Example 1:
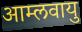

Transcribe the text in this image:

आम्लवायु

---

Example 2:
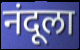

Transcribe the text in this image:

नंदूला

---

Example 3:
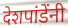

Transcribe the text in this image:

देशपांडेंनी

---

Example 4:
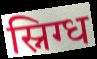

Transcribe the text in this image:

स्निग्ध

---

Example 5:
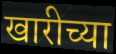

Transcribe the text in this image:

खारीच्या